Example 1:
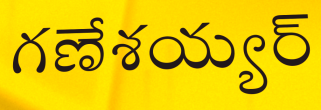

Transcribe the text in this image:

గణేశయ్యర్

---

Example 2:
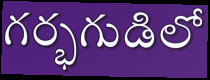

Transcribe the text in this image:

గర్భగుడిలో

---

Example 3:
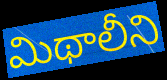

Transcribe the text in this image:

మిథాలీని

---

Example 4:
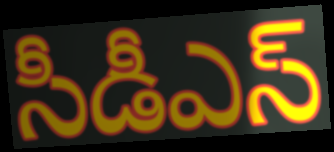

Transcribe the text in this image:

సీడీఎస్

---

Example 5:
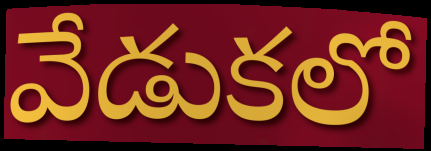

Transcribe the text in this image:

వేడుకలో